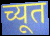
च्यूत